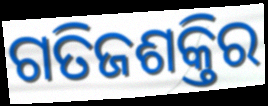
ଗତିଜଶକ୍ତିର